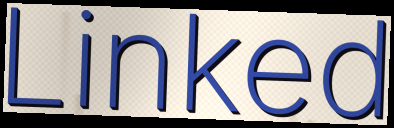
Linked